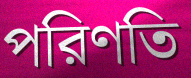
পরিণতি